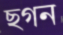
ছগন